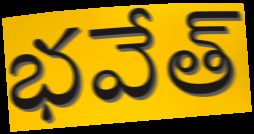
భవేత్